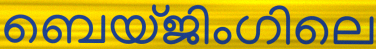
ബെയ്ജിംഗിലെ